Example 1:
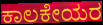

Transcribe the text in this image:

ಕಾಲಕೇಯರ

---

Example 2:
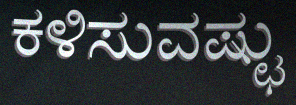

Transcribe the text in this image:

ಕಳಿಸುವಷ್ಟು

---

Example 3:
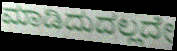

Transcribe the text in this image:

ಮಾಡಿದುದಲ್ಲದೇ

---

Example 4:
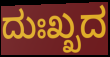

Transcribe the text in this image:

ದುಃಖ್ಖದ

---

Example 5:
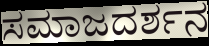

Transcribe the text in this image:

ಸಮಾಜದರ್ಶನ